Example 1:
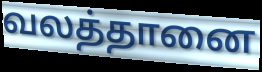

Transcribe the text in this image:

வலத்தானை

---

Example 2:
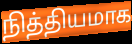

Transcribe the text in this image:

நித்தியமாக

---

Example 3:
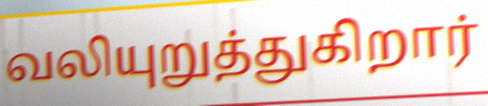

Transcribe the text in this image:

வலியுறுத்துகிறார்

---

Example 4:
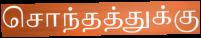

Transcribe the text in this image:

சொந்தத்துக்கு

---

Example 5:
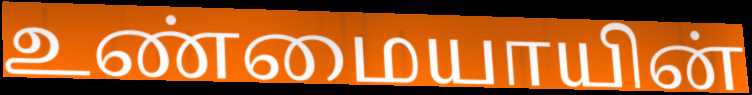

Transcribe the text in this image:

உண்மையாயின்